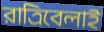
রাত্রিবেলাই